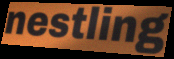
nestling